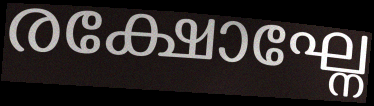
രക്ഷോഘ്നേ